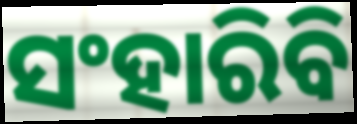
ସଂହାରିବି